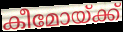
കീമോയ്ക്ക്